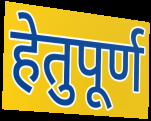
हेतुपूर्ण